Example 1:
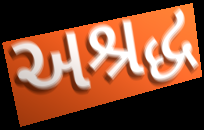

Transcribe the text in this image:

અશ્રદ્ધ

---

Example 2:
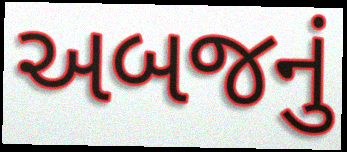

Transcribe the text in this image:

અબજનું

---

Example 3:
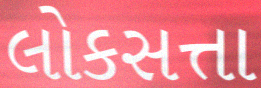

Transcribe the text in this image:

લોકસત્તા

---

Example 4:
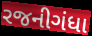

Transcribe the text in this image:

રજનીગંધા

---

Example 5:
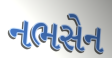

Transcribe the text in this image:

નભસેન